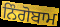
ਨਿੰਗੋਬਾਮ